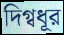
দিগ্বধূর